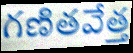
గణితవేత్త